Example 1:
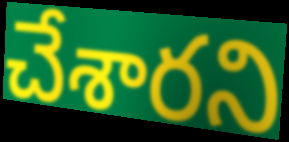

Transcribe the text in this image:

చేశారని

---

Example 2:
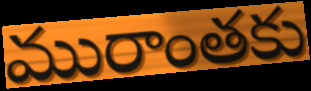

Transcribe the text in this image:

మురాంతకు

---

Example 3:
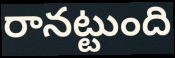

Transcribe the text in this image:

రానట్టుంది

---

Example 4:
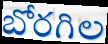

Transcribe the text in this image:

బోరగిల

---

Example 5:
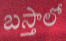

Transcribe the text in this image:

బస్తాలో